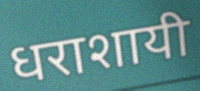
धराशायी